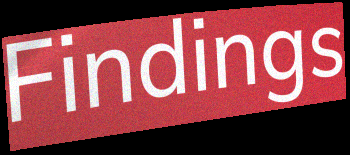
Findings